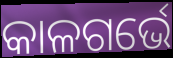
କାଳଗର୍ଭେ